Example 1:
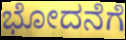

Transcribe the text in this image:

ಭೋದನೆಗೆ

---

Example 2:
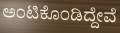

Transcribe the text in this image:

ಅಂಟಿಕೊಂಡಿದ್ದೇವೆ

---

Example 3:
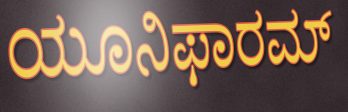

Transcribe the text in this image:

ಯೂನಿಫಾರಮ್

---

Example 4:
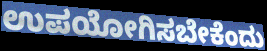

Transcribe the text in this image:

ಉಪಯೋಗಿಸಬೇಕೆಂದು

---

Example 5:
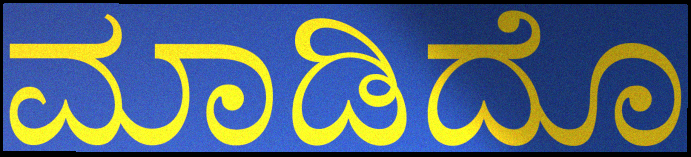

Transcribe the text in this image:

ಮಾಡಿದೊ